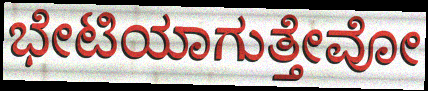
ಭೇಟಿಯಾಗುತ್ತೇವೋ